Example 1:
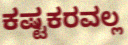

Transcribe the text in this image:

ಕಷ್ಟಕರವಲ್ಲ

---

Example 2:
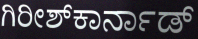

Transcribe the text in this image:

ಗಿರೀಶ್‌ಕಾರ್ನಾಡ್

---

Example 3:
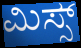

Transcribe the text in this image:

ಮಿಸ್ಸ್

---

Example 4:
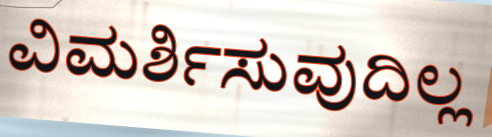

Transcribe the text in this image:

ವಿಮರ್ಶಿಸುವುದಿಲ್ಲ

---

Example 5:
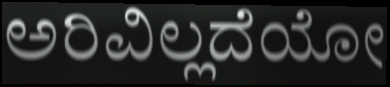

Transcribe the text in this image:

ಅರಿವಿಲ್ಲದೆಯೋ